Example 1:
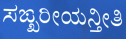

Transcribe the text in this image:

ಸಙ್ಖರೀಯನ್ತೀತಿ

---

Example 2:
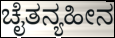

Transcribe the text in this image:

ಚೈತನ್ಯಹೀನ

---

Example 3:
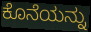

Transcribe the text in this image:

ಕೊನೆಯನ್ನು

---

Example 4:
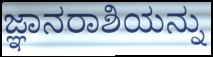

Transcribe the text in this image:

ಜ್ಞಾನರಾಶಿಯನ್ನು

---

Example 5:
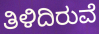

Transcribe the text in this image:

ತಿಳಿದಿರುವೆ